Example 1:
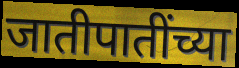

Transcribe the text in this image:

जातीपातींच्या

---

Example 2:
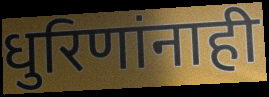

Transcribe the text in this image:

धुरिणांनाही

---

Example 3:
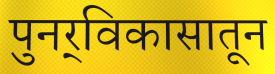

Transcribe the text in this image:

पुनर्विकासातून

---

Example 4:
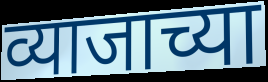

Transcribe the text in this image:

व्याजाच्या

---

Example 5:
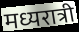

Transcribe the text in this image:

मध्यरात्री